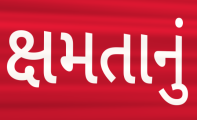
ક્ષમતાનું